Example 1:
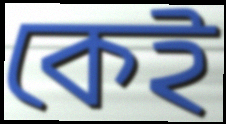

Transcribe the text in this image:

কেই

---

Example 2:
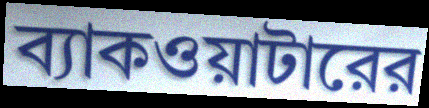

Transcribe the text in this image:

ব্যাকওয়াটারের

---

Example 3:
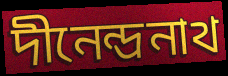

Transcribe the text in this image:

দীনেন্দ্রনাথ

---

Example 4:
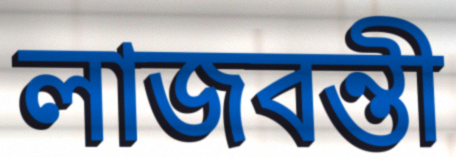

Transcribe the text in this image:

লাজবন্তী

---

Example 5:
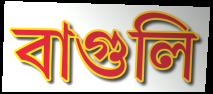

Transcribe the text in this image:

বাগুলি